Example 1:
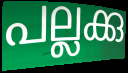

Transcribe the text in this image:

പല്ലക്കു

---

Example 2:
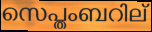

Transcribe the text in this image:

സെപ്തംബറില്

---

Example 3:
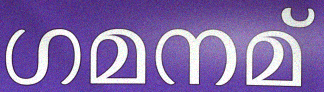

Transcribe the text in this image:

ഗമനമ്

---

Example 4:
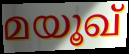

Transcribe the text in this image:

മയൂഖ്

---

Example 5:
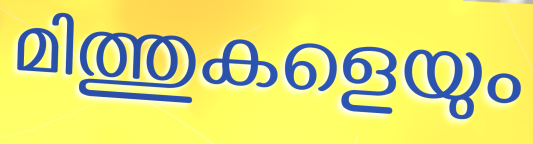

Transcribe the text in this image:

മിത്തുകളെയും